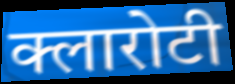
क्लारोटी